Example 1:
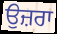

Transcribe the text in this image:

ਉਜ਼ਰਾ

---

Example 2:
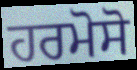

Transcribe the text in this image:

ਹਰਮੋਸੋ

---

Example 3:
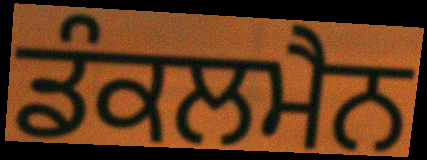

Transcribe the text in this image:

ਡੰਕਲਮੈਨ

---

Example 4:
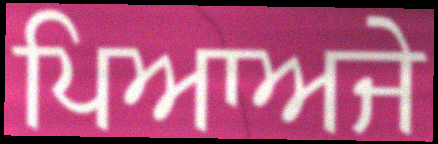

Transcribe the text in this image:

ਪਿਆਅਜੇ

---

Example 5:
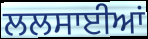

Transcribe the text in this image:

ਲਲਸਾਈਆਂ